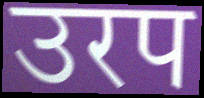
उरप